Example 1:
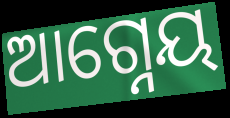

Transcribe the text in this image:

ଆଗ୍ନେୟ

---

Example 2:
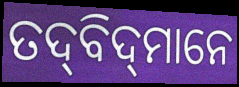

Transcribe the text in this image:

ତଦ୍‌ବିଦ୍‌ମାନେ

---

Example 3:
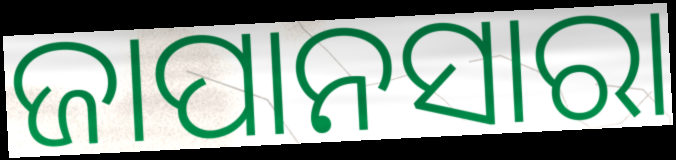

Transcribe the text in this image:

ଜାପାନସାରା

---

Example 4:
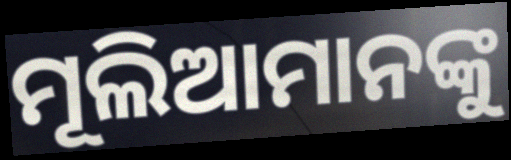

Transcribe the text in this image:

ମୂଲିଆମାନଙ୍କୁ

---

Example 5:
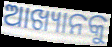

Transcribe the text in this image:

ଆଖ୍ୟାନକୁ